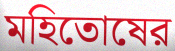
মহিতোষের